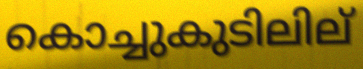
കൊച്ചുകുടിലില്